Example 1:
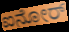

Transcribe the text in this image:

ಐನೋರ್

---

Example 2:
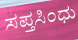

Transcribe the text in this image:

ಸಪ್ತಸಿಂಧು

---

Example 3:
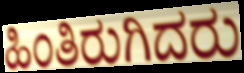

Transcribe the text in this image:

ಹಿಂತಿರುಗಿದರು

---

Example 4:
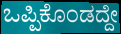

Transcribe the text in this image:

ಒಪ್ಪಿಕೊಂಡದ್ದೇ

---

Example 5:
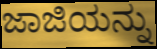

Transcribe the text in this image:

ಜಾಜಿಯನ್ನು